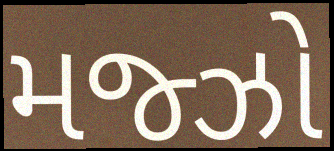
મજ્ઝો